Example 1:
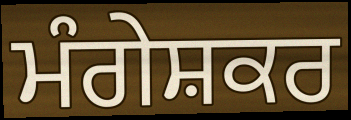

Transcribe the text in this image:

ਮੰਗੇਸ਼ਕਰ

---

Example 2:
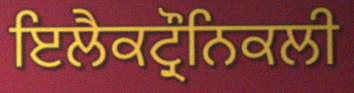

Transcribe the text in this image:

ਇਲੈਕਟ੍ਰੌਨਿਕਲੀ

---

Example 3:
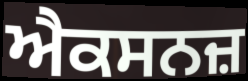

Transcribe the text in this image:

ਐਕਸਨਜ਼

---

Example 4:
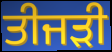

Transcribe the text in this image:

ਤੀਜੜੀ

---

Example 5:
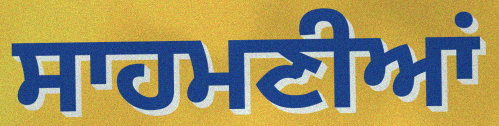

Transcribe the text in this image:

ਸਾਹਮਣੀਆਂ